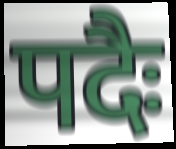
पदैः